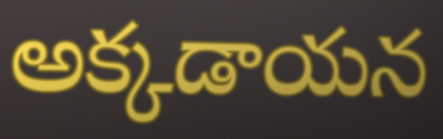
అక్కడాయన